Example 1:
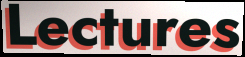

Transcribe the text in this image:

Lectures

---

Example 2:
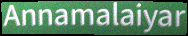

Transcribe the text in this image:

Annamalaiyar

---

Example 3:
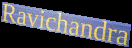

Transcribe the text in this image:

Ravichandra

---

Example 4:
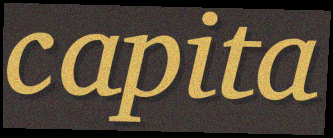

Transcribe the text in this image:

capita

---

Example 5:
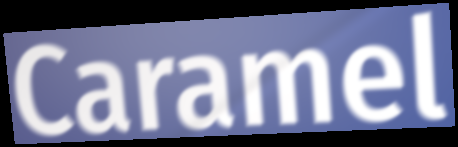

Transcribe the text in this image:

Caramel